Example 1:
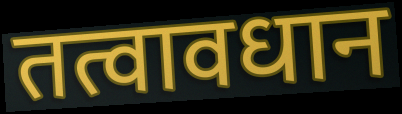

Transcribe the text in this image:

तत्‍वावधान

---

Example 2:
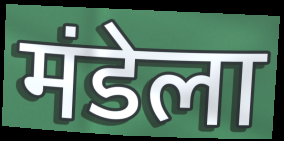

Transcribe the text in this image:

मंडेला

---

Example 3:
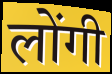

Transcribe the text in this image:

लोंगी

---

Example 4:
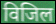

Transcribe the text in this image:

विजिल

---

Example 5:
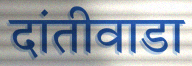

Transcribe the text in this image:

दांतीवाडा